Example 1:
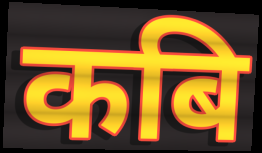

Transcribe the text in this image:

कबि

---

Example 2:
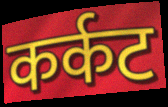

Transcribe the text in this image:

कर्कट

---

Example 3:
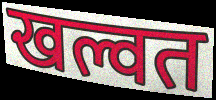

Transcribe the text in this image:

खल्वत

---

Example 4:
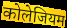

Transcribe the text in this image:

कोलेजियम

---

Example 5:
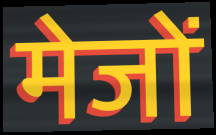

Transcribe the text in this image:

मेजों